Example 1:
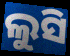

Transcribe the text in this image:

ଲୁସି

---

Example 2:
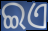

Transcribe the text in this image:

ଇଏ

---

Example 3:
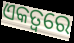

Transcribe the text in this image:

ଏକତ୍ୱରେ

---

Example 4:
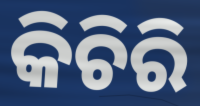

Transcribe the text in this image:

କିଚିରି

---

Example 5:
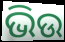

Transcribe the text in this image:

ଭିଉ